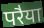
परैया